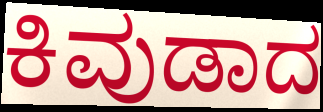
ಕಿವುಡಾದ